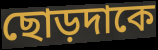
ছোড়দাকে